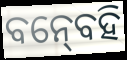
ବନ୍‍ବେହି